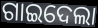
ଗାଇଦେଲା